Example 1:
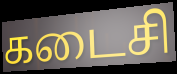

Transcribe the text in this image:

கடைசி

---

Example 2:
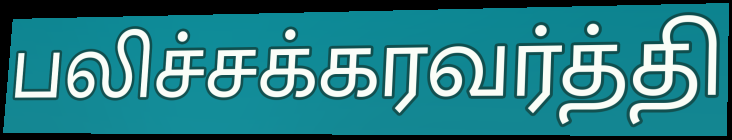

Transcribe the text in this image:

பலிச்சக்கரவர்த்தி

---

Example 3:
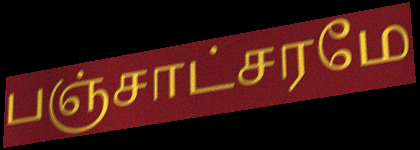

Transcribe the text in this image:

பஞ்சாட்சரமே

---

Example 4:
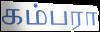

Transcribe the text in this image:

கம்பரா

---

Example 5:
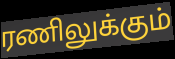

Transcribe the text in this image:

ரணிலுக்கும்